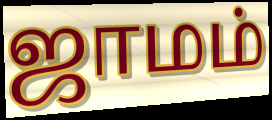
ஜாமம்